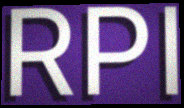
RPI